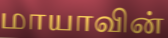
மாயாவின்